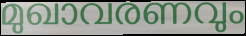
മുഖാവരണവും